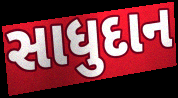
સાધુદાન